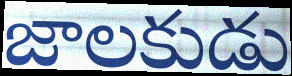
జాలకుడు